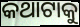
କଥାଟାକୁ